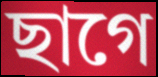
ছাগে